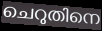
ചെറുതിനെ